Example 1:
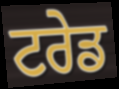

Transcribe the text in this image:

ਟਰੇਡ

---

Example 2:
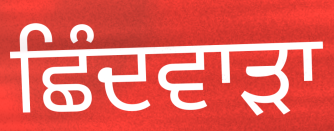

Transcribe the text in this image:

ਛਿੰਦਵਾੜਾ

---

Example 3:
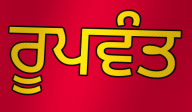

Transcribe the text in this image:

ਰੂਪਵੰਤ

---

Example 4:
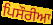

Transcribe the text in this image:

ਪਿਸੌਰੀਆ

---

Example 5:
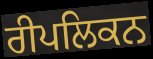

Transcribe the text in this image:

ਰੀਪਲਿਕਨ